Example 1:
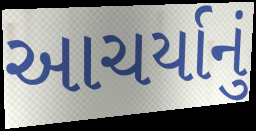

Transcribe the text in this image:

આચર્યાનું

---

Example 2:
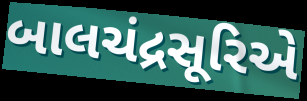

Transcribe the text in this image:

બાલચંદ્રસૂરિએ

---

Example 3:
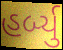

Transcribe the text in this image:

હર્બ્યુ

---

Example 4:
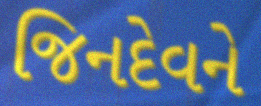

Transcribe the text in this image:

જિનદેવને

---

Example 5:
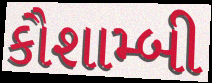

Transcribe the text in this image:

કૌશામ્બી